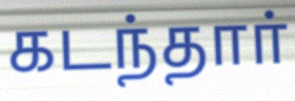
கடந்தார்